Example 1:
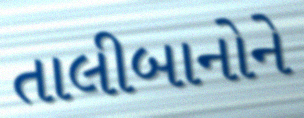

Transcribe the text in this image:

તાલીબાનોને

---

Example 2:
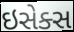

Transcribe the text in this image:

ઇસેક્સ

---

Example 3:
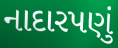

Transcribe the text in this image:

નાદારપણું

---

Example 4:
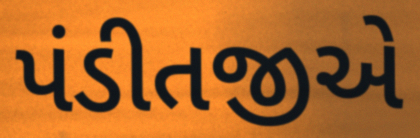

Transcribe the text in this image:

પંડીતજીએ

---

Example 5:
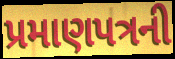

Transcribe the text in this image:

પ્રમાણપત્રની